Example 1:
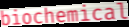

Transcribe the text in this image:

biochemical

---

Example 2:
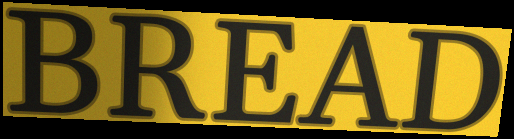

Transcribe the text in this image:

BREAD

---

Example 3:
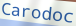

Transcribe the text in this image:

Carodoc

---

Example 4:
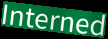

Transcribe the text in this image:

Interned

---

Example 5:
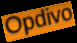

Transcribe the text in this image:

Opdivo